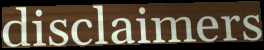
disclaimers